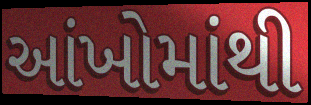
આંખોમાંથી